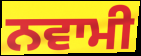
ਨਵਾਮੀ